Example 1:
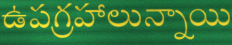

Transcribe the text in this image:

ఉపగ్రహాలున్నాయి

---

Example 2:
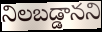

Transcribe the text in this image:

నిలబడ్డానని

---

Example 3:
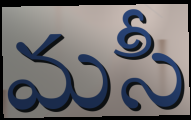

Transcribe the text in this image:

మసీ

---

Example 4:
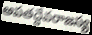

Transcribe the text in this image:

అపతద్దేవరాజస్య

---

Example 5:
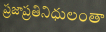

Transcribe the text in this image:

ప్రజాప్రతినిధులంతా